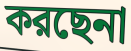
করছেনা